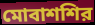
মোবাশশির